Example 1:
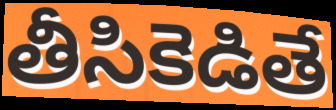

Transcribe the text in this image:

తీసికెడితే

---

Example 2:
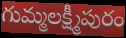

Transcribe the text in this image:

గుమ్మలక్ష్మీపురం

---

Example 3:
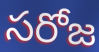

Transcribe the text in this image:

సరోజ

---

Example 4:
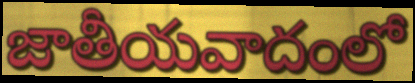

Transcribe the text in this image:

జాతీయవాదంలో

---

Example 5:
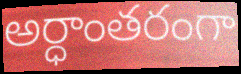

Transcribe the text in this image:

అర్ధాంతరంగా